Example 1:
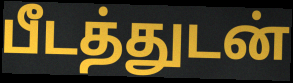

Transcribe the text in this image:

பீடத்துடன்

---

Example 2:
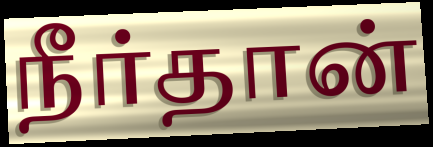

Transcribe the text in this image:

நீர்தான்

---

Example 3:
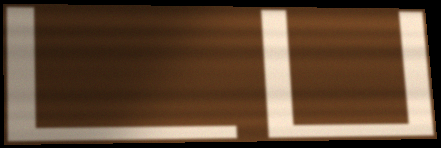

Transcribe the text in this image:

டப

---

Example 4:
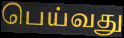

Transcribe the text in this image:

பெய்வது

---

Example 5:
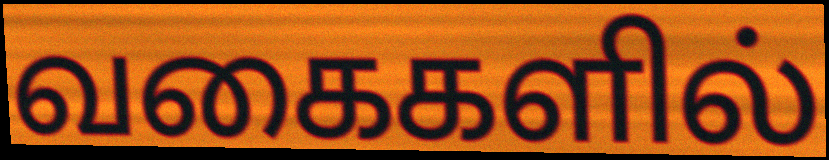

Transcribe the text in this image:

வகைகளில்